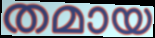
തമായ